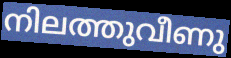
നിലത്തുവീണു